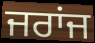
ਜਰਾਂਜ